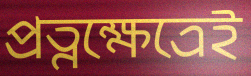
প্রত্নক্ষেত্রেই